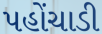
પહોંચાડી